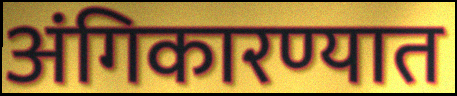
अंगिकारण्यात